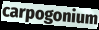
carpogonium